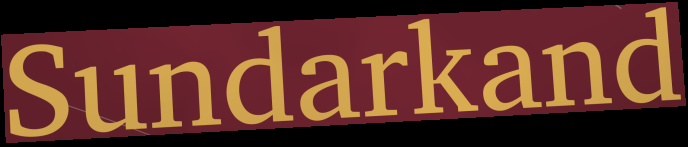
Sundarkand